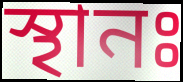
স্থানঃ